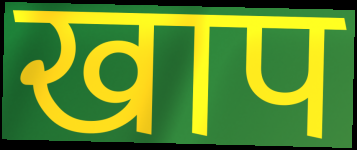
खाप